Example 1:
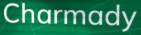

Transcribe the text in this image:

Charmady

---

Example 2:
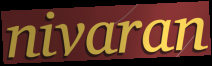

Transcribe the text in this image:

nivaran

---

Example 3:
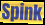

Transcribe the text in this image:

Spink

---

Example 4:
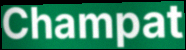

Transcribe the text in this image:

Champat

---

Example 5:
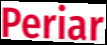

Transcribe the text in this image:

Periar